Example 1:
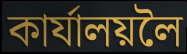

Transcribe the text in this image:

কাৰ্যালয়লৈ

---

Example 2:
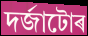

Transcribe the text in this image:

দৰ্জাটোৰ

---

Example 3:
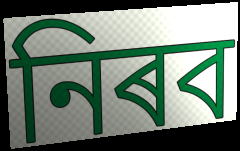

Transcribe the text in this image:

নিৰব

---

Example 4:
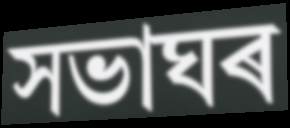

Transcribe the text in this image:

সভাঘৰ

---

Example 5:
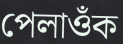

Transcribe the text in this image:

পেলাওঁক